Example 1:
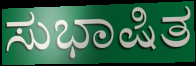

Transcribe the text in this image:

ಸುಭಾಷಿತ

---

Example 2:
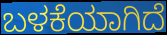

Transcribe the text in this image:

ಬಳಕೆಯಾಗಿದೆ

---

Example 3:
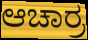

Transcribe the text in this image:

ಆಚಾರ್ರ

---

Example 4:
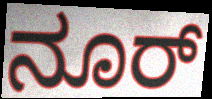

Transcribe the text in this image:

ನೂರ್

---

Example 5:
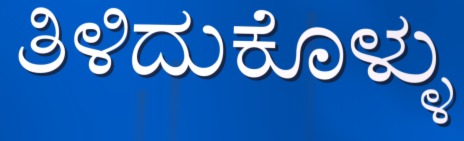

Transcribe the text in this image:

ತಿಳಿದುಕೊಳ್ಳು